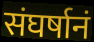
संघर्षानं